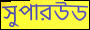
সুপারউড